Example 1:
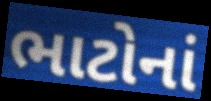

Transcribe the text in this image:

ભાટોનાં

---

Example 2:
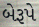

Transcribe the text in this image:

બેરૂપે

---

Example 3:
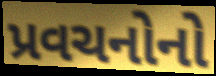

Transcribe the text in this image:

પ્રવચનોનો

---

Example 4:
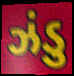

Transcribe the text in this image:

ઝંડુ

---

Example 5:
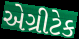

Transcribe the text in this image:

એગ્રીટેક